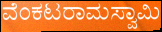
ವೆಂಕಟರಾಮಸ್ವಾಮಿ